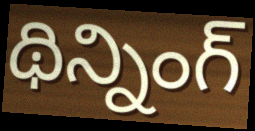
థిన్నింగ్